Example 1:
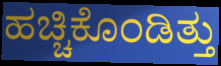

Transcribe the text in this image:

ಹಚ್ಚಿಕೊಂಡಿತ್ತು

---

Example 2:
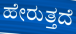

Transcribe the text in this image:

ಹೇರುತ್ತದೆ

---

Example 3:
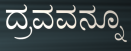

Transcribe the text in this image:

ದ್ರವವನ್ನೂ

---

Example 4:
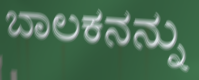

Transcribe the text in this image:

ಬಾಲಕನನ್ನು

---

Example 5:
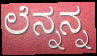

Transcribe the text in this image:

ಲೆನ್ನನ್ನ